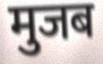
मुजब